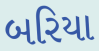
બરિયા